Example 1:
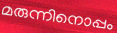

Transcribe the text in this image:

മരുന്നിനൊപ്പം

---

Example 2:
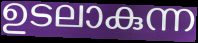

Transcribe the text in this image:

ഉടലാകുന്ന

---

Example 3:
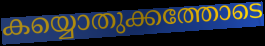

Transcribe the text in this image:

കയ്യൊതുക്കത്തോടെ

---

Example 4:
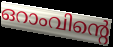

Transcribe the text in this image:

ഒറാംവിന്റെ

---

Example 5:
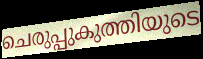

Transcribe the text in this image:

ചെരുപ്പുകുത്തിയുടെ